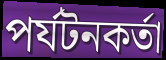
পর্যটনকর্তা